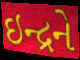
ઇન્દ્રને